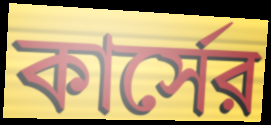
কার্সের